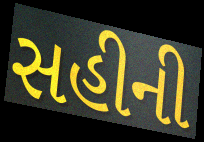
સહીની